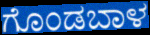
ಗೊಂಡಬಾಳ